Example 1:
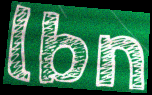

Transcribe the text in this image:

lbn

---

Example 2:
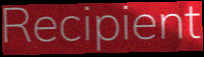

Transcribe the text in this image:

Recipient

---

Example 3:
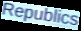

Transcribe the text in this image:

Republics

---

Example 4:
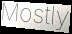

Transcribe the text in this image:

Mostly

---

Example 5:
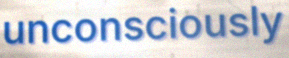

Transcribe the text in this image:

unconsciously